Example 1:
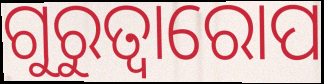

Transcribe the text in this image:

ଗୁରୁତ୍ୱାରୋପ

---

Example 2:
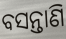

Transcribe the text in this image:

ବସନ୍ତାଣି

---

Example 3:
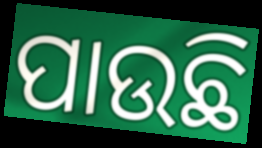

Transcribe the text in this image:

ପାଉଛି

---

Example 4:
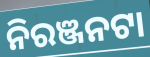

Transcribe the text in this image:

ନିରଞ୍ଜନଟା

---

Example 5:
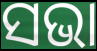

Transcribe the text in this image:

ସଭା